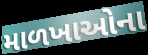
માળખાઓના